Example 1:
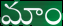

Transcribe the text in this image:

మాం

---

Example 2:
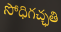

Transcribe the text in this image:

సోధిగచ్ఛతి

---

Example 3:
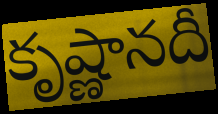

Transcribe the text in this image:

కృష్ణానదీ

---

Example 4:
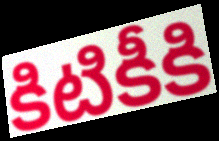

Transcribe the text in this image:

కిటికీకి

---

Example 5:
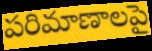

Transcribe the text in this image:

పరిమాణాలపై